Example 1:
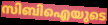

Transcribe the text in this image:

സിബിഐയുടെ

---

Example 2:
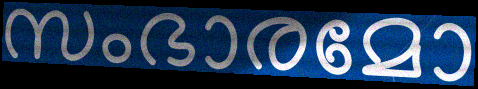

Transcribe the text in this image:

സംഭാരമോ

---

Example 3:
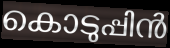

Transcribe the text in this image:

കൊടുപ്പിൻ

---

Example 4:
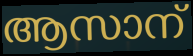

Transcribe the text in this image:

ആസാന്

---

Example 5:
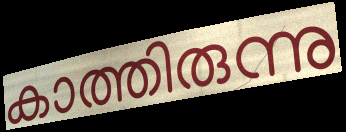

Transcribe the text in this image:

കാത്തിരുന്നു